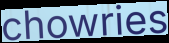
chowries